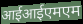
आईआईएमएम